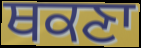
ਥਕਣਾ